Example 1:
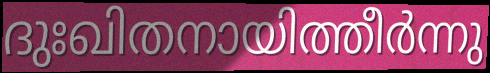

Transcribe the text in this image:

ദുഃഖിതനായിത്തീർന്നു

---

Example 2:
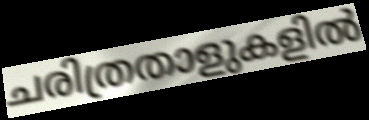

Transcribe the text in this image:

ചരിത്രതാളുകളിൽ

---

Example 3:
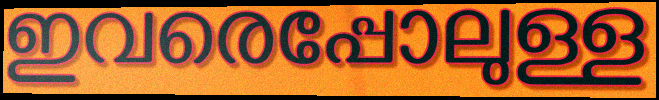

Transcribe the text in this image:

ഇവരെപ്പോലുള്ള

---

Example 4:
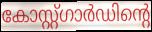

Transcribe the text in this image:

കോസ്റ്റ്ഗാർഡിന്റെ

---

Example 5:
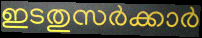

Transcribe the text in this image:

ഇടതുസർക്കാർ